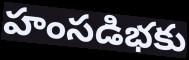
హంసడిభకు